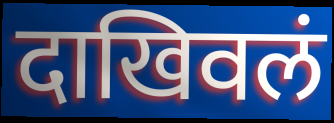
दाखिवलं